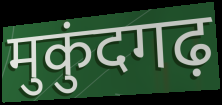
मुकुंदगढ़